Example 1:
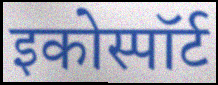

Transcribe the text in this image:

इकोस्पॉर्ट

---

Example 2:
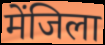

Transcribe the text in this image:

मेंजिला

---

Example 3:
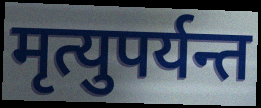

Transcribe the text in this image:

मृत्युपर्यन्त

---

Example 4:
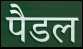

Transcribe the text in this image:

पैडल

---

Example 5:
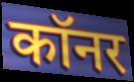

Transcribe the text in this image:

कॉनर